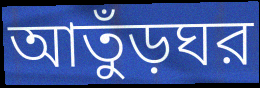
আতুঁড়ঘর